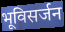
भूविसर्जन